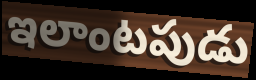
ఇలాంటపుడు